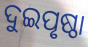
ଦୁଇପୃଷ୍ଠା